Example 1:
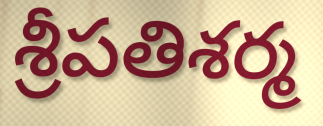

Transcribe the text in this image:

శ్రీపతిశర్మ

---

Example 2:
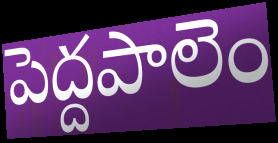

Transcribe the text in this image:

పెద్దపాలెం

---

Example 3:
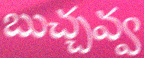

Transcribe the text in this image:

బుచ్చవ్వ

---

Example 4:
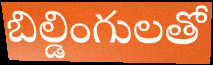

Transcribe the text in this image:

బిల్డింగులతో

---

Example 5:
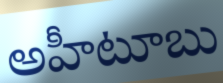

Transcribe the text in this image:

అహీటూబు